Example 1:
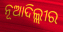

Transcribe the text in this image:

ନୂଆଦିଲ୍ଲୀର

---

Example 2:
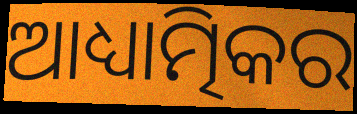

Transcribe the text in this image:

ଆଧ୍ୟାତ୍ମିକର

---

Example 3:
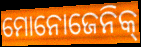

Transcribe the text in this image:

ମୋନୋଜେନିକ୍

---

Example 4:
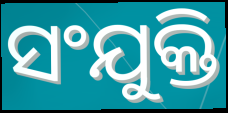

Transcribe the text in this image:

ସଂଯୁକ୍ତି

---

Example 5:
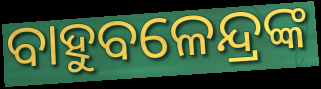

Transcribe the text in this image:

ବାହୁବଳେନ୍ଦ୍ରଙ୍କ